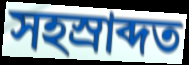
সহস্ৰাব্দত